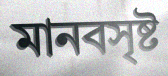
মানবসৃষ্ট